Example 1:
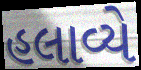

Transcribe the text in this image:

હલાવ્યે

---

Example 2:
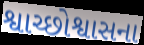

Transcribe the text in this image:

શ્વાચ્છોશ્વાસના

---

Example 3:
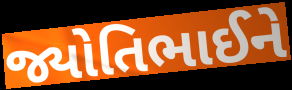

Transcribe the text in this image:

જ્યોતિભાઈને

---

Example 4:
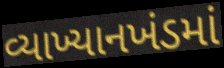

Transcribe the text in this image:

વ્યાખ્યાનખંડમાં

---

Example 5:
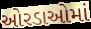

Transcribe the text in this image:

ઓરડાઓમાં